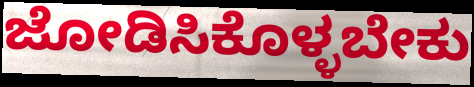
ಜೋಡಿಸಿಕೊಳ್ಳಬೇಕು